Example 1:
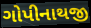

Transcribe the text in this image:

ગોપીનાથજી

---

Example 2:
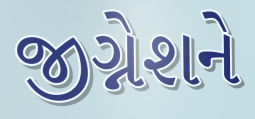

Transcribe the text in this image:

જીગ્નેશને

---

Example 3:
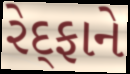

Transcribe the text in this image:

રેદ્ફાને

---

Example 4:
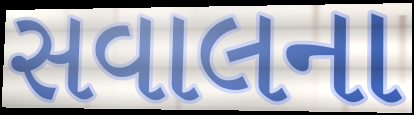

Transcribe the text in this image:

સવાલના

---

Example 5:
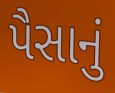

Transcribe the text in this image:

પૈસાનું